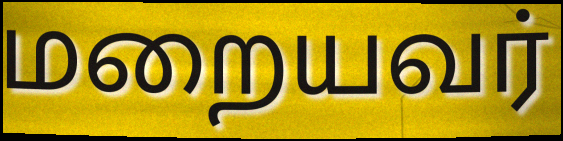
மறையவர்